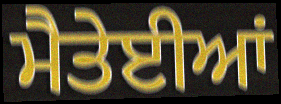
ਮੈਤੇਈਆਂ